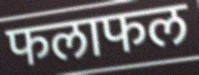
फलाफल